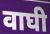
वाघी